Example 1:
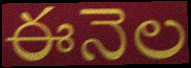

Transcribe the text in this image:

ఈనెల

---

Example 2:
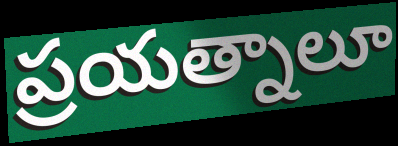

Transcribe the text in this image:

ప్రయత్నాలూ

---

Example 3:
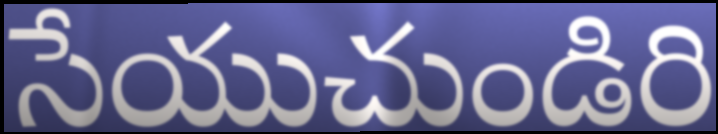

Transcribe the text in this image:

సేయుచుండిరి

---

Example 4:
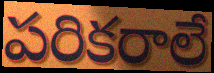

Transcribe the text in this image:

పరికరాలే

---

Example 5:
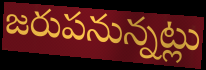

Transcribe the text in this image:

జరుపనున్నట్లు